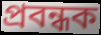
প্ৰবন্ধক